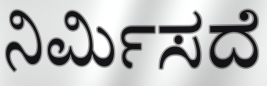
ನಿರ್ಮಿಸದೆ